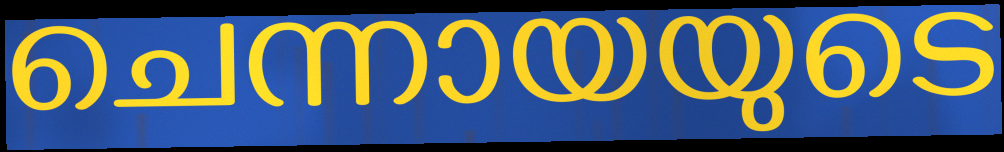
ചെന്നായയുടെ